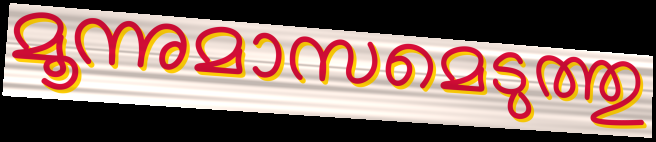
മൂന്നുമാസമെടുത്തു